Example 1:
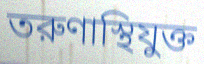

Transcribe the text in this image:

তরুণাস্থিযুক্ত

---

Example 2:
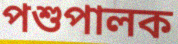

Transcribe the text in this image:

পশুপালক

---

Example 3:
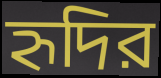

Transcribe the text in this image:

হৃদির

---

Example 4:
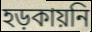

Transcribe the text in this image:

হড়কায়নি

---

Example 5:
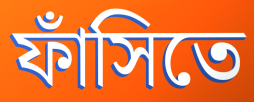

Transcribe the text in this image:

ফাঁসিতে